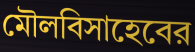
মৌলবিসাহেবের